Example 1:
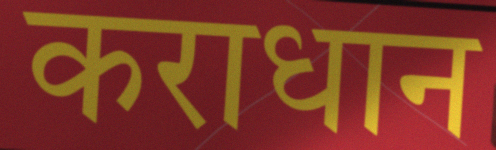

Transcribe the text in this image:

कराधान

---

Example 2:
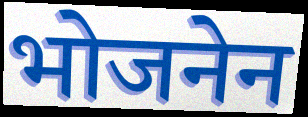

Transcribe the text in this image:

भोजनेन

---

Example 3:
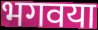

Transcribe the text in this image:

भगवया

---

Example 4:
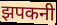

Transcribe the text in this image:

झपकनी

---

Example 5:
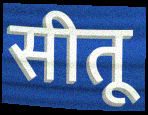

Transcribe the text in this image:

सीतू